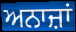
ਅਨਾਜ਼ਾਂ